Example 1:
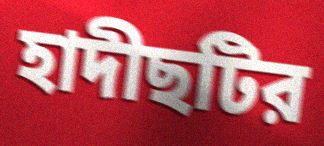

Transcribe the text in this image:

হাদীছটির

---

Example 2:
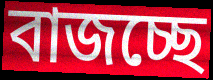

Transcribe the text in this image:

বাজচ্ছে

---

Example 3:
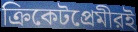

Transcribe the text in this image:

ক্রিকেটপ্রেমীরই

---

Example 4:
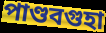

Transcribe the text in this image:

পাণ্ডবগুহা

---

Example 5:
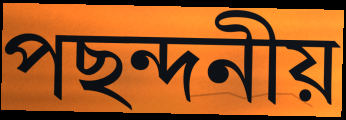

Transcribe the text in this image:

পছন্দনীয়